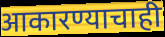
आकारण्याचाही